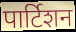
पार्टिशन